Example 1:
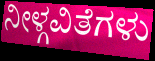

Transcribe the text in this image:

ನೀಳ್ಗವಿತೆಗಳು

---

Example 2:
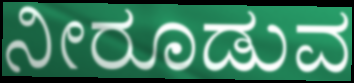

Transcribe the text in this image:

ನೀರೂಡುವ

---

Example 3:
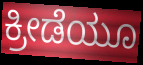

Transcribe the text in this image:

ಕ್ರೀಡೆಯೂ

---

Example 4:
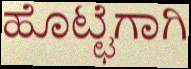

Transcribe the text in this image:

ಹೊಟ್ಟೆಗಾಗಿ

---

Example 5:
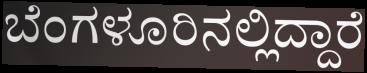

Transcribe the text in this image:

ಬೆಂಗಳೂರಿನಲ್ಲಿದ್ದಾರೆ